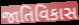
જાતિવિકાસ